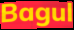
Bagul